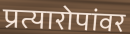
प्रत्यारोपांवर